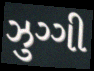
ઝુગ્ગી